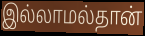
இல்லாமல்தான்